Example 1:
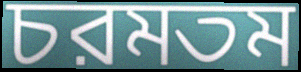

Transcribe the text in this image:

চরমতম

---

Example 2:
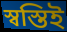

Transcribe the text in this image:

স্বস্তিই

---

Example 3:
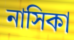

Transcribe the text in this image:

নাসিকা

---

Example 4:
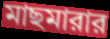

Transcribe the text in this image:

মাছমারার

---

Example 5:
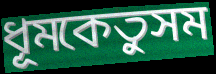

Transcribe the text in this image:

ধূমকেতুসম